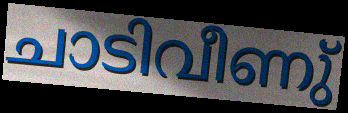
ചാടിവീണു്